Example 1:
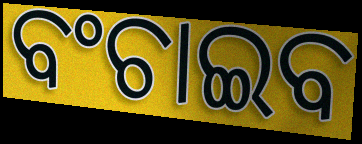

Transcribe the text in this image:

ବଂଚାଇବ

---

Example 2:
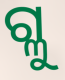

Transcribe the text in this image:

ଗ୍ଳୁ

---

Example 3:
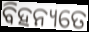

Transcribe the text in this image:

ବିହନ୍ୟତେ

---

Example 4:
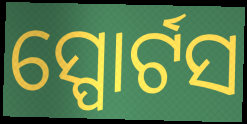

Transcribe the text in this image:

ସ୍ପୋର୍ଟସ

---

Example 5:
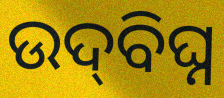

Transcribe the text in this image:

ଉଦ୍‌ବିଘ୍ନ